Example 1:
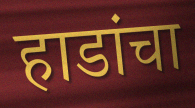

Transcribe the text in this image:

हाडांचा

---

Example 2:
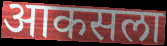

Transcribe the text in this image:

आकसला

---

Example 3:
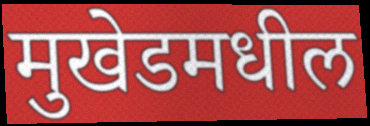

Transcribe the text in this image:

मुखेडमधील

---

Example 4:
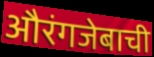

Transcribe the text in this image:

औरंगजेबाची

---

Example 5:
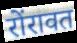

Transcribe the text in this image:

रोंरावत